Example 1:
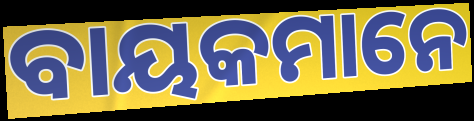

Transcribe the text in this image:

ବାୟକମାନେ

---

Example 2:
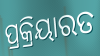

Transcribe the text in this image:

ପ୍ରକ୍ରିୟାରତ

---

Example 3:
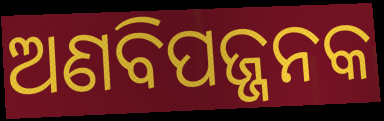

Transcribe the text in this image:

ଅଣବିପଜ୍ଜନକ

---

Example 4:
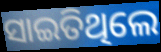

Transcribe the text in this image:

ସାଇତିଥିଲେ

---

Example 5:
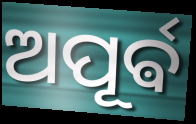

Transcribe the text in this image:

ଅପୂର୍ଵ